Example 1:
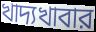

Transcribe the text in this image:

খাদ্যখাবার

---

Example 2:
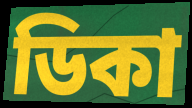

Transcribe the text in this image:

ডিকা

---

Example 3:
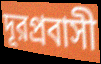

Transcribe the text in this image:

দূরপ্রবাসী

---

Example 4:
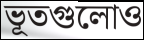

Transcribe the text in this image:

ভূতগুলোও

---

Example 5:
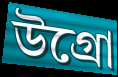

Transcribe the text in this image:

উগ্রো